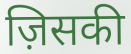
ज़िसकी